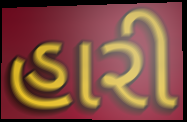
હારી